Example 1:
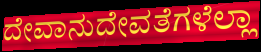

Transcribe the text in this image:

ದೇವಾನುದೇವತೆಗಳೆಲ್ಲಾ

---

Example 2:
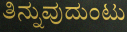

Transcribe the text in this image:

ತಿನ್ನುವುದುಂಟು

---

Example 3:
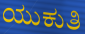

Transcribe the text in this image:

ಯುಕುತಿ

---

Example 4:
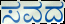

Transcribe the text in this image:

ಸವದ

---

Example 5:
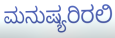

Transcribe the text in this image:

ಮನುಷ್ಯರಿರಲಿ